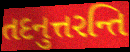
તદનુત્તરન્તિ